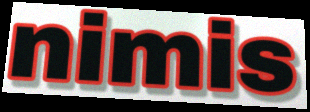
nimis